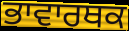
ਭਾਵਾਰਥਕ